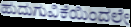
ಹುದುಗುವಿಕೆಯಿಂದಲೇ